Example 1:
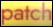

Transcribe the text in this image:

patch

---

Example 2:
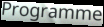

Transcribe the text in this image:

Programme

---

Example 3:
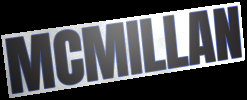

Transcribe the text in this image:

MCMILLAN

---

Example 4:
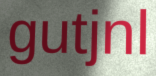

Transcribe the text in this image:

gutjnl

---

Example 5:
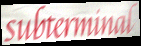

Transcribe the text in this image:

subterminal